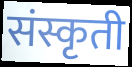
संस्कृती